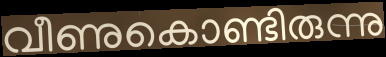
വീണുകൊണ്ടിരുന്നു